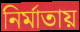
নির্মাতায়